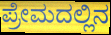
ಪ್ರೇಮದಲ್ಲಿನ